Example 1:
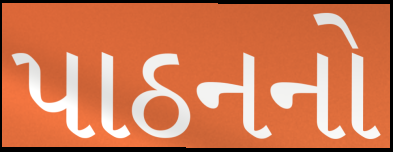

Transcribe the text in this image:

પાઠનનો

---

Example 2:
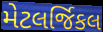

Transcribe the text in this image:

મેટલર્જિકલ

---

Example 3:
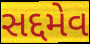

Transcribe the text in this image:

સદ્દમેવ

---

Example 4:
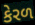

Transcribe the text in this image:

કેરળ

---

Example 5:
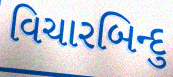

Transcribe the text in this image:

વિચારબિન્દુ